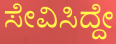
ಸೇವಿಸಿದ್ದೇ